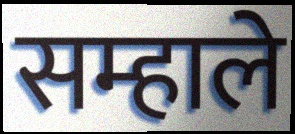
सम्हाले